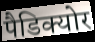
पैडिक्योर